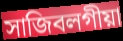
সাজিবলগীয়া